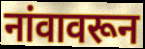
नांवावरून